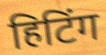
हिटिंग